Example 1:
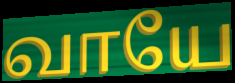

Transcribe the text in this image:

வாயே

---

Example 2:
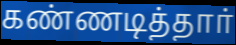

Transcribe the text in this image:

கண்ணடித்தார்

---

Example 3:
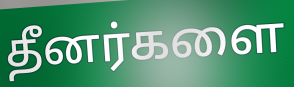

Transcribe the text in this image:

தீனர்களை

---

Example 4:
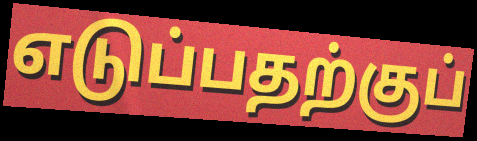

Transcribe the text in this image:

எடுப்பதற்குப்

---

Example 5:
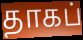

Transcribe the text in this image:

தாகப்